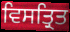
ਵਿਸਤ੍ਰਿਤ